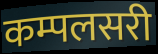
कम्पलसरी